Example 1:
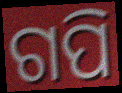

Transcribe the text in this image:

ଗପି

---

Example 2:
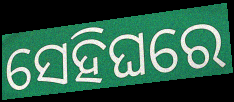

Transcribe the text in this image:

ସେହିଘରେ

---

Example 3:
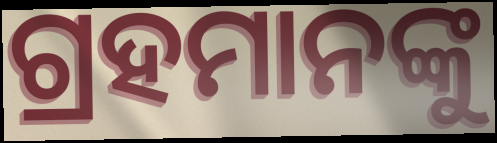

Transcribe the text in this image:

ଗ୍ରହମାନଙ୍କୁ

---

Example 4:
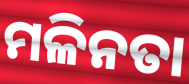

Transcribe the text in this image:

ମଳିନତା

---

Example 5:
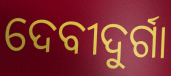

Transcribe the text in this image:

ଦେବୀଦୁର୍ଗା